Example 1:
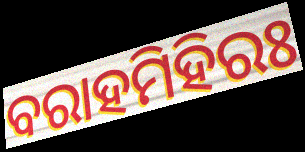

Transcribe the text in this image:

ବରାହମିହିରଃ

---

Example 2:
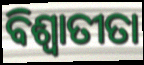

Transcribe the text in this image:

ବିଶ୍ଵାତୀତା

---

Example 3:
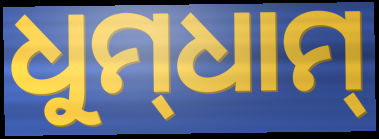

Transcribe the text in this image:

ଧୁମ୍‌ଧାମ୍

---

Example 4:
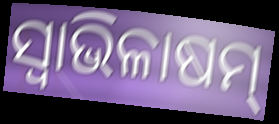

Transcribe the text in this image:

ସ୍ବାଭିଳାଷମ୍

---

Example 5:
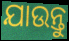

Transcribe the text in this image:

ଯାଉନ୍ତୁ